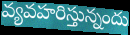
వ్యవహరిస్తున్నందు